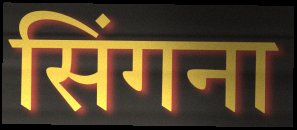
सिंगना